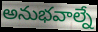
అనుభవాల్నే